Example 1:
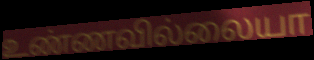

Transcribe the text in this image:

உண்ணவில்லையா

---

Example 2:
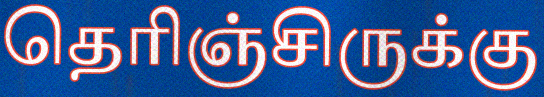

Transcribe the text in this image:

தெரிஞ்சிருக்கு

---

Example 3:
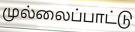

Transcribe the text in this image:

முல்லைப்பாட்டு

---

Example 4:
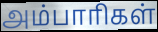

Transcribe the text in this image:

அம்பாரிகள்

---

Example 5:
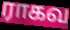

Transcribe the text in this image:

ராகவ